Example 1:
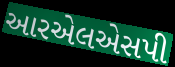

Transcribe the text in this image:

આરએલએસપી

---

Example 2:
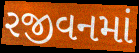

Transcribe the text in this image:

રજીવનમાં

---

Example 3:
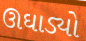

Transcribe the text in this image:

ઊઘાડ્યો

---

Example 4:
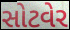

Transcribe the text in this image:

સોટવેર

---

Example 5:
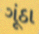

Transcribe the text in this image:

ગૂંઠા